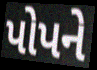
પોપને